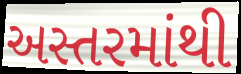
અસ્તરમાંથી